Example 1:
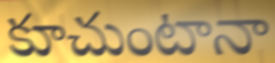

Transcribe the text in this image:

కూచుంటానా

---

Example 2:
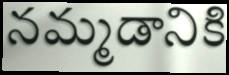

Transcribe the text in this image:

నమ్మడానికి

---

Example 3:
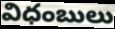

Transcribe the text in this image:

విధంబులు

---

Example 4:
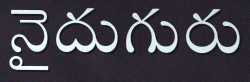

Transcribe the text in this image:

నైదుగురు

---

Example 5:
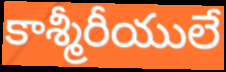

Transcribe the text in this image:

కాశ్మీరీయులే